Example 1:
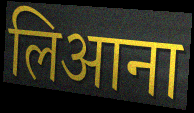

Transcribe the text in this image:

लिआना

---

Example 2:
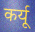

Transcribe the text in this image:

कर्यू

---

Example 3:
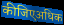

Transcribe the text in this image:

कीजिएअधिक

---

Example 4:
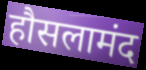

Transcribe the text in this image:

हौसलामंद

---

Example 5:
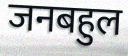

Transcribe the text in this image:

जनबहुल